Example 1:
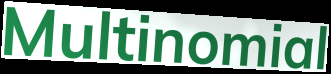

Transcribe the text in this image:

Multinomial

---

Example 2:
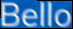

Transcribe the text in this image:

Bello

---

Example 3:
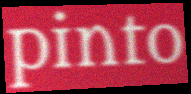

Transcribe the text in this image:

pinto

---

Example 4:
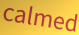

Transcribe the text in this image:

calmed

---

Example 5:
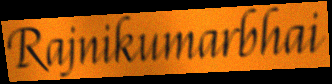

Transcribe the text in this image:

Rajnikumarbhai